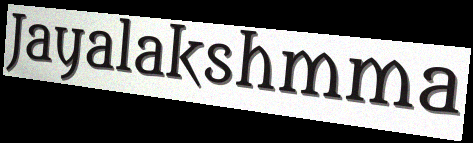
Jayalakshmma